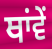
ਥਾਂਵੇਂ